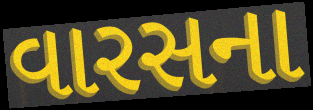
વારસના